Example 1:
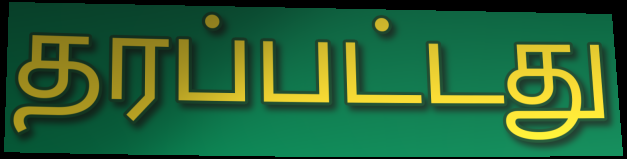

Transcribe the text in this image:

தரப்பட்டது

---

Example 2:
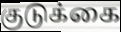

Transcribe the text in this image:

குடுக்கை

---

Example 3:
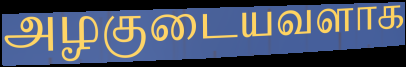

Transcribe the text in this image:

அழகுடையவளாக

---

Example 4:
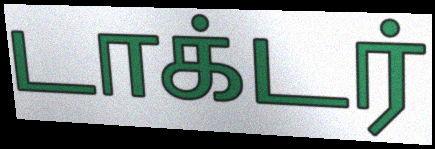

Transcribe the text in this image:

டாக்டர்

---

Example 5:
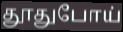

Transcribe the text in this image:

தூதுபோய்